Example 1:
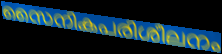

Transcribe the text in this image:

സൈനികപരിശീലനം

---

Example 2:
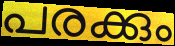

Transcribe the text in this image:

പരക്കും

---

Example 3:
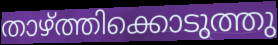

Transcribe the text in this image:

താഴ്ത്തിക്കൊടുത്തു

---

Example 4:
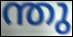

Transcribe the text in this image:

ന്തു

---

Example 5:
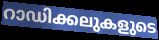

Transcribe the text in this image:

റാഡിക്കലുകളുടെ